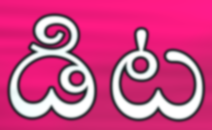
డిట